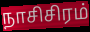
நாசிசிரம்